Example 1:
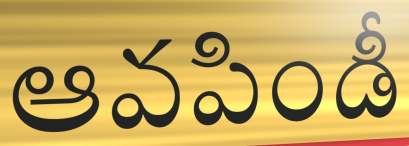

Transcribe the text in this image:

ఆవపిండీ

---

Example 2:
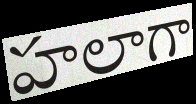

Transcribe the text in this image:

హలాగా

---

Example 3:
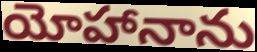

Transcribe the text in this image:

యోహానాను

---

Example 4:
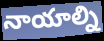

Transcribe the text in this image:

నాయాల్ని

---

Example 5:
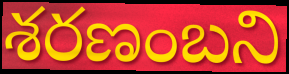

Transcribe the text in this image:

శరణంబని